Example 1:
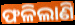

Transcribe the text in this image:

ଫଳିଲାଣି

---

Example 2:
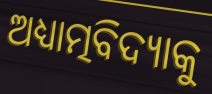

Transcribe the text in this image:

ଅଧ୍ୟାତ୍ମବିଦ୍ୟାକୁ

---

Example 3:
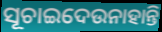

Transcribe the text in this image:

ସୂଚାଇଦେଉନାହାନ୍ତି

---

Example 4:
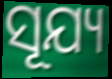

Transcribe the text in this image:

ସୂଯ୍ୟ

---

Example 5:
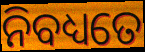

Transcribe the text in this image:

ନିବଧ୍ୟତେ